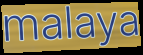
malaya